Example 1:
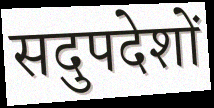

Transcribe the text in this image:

सदुपदेशों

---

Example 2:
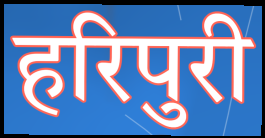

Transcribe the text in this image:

हरिपुरी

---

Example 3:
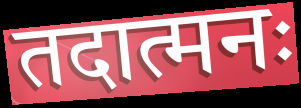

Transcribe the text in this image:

तदात्मनः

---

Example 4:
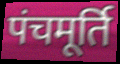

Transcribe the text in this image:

पंचमूर्ति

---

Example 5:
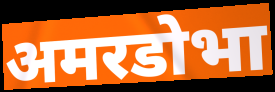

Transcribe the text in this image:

अमरडोभा